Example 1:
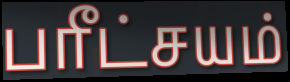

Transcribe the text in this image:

பரீட்சயம்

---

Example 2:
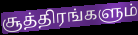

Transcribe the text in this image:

சூத்திரங்களும்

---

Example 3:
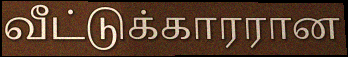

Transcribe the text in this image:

வீட்டுக்காரரான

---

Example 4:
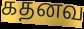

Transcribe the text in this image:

கதனவ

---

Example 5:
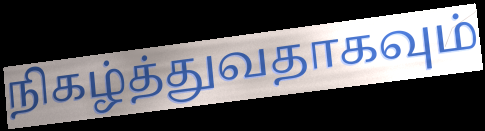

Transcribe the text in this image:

நிகழ்த்துவதாகவும்